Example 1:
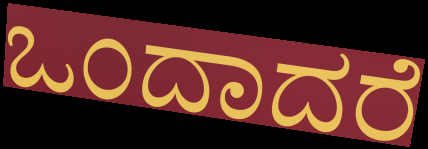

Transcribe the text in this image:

ಒಂದಾದರೆ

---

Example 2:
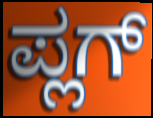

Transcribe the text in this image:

ಪ್ಲಗ್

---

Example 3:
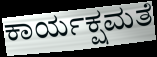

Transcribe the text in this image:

ಕಾರ್ಯಕ್ಷಮತೆ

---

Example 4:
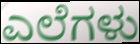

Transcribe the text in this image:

ಎಲೆಗಳು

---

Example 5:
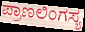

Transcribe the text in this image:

ಪ್ರಾಣಲಿಂಗಸ್ಯ